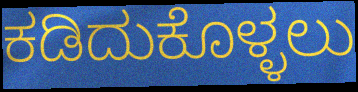
ಕಡಿದುಕೊಳ್ಳಲು